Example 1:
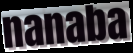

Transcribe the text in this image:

nanaba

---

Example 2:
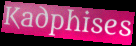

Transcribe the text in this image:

Kadphises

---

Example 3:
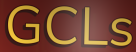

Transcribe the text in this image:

GCLs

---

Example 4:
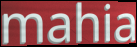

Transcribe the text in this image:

mahia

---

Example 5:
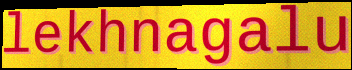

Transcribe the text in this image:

lekhnagalu